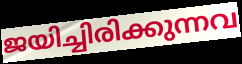
ജയിച്ചിരിക്കുന്നവ